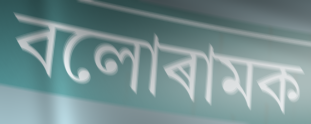
বলোৰামক